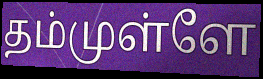
தம்முள்ளே